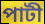
পাটী